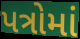
પત્રોમાં